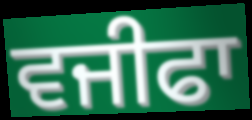
ਵਜੀਫਾ